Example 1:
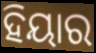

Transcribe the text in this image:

ହିୟାର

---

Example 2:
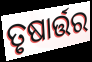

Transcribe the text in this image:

ତୃଷାର୍ତ୍ତର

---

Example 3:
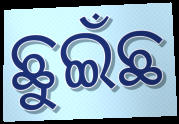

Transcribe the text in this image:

ଛୁଇଁଛ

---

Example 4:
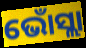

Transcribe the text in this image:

ଭୋଁସ୍ଲା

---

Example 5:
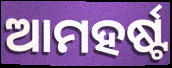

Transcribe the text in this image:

ଆମହର୍ଷ୍ଟ